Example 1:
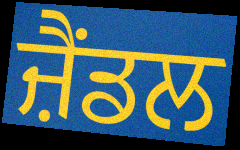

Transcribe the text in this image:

ਜ਼ੈਂਡਲ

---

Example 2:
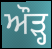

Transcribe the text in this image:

ਔੜ੍ਹ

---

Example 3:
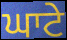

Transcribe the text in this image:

ਘਾਟੇ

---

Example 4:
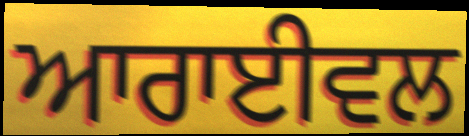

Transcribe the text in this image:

ਆਰਾਈਵਲ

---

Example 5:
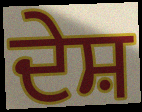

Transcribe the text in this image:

ਦੇਸ਼